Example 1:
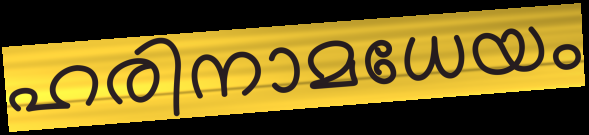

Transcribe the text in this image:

ഹരിനാമധേയം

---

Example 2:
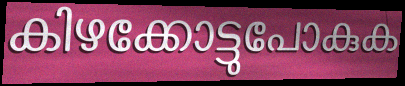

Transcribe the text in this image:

കിഴക്കോട്ടുപോകുക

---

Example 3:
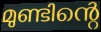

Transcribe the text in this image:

മുണ്ടിന്റെ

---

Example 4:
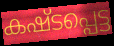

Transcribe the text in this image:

കഷ്ടപ്പെട്ട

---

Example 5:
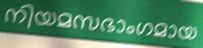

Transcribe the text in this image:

നിയമസഭാംഗമായ